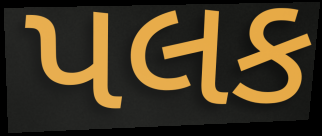
પલક